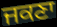
ਜਕਣਾ